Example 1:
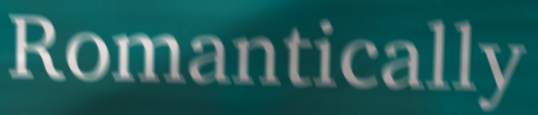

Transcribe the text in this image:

Romantically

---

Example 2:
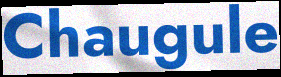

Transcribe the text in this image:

Chaugule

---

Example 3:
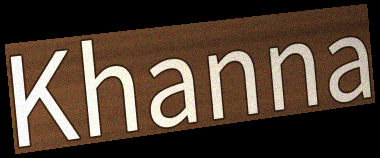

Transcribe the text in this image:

Khanna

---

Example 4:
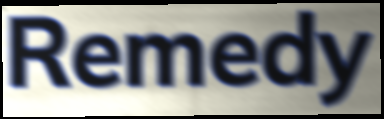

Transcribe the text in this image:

Remedy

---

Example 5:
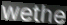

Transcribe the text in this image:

wethe